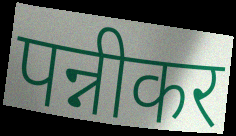
पन्नीकर